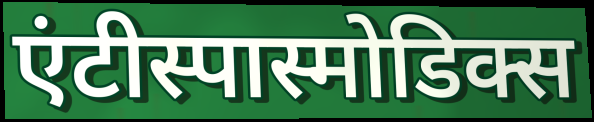
एंटीस्पास्मोडिक्स